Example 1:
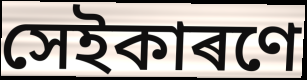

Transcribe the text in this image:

সেইকাৰণে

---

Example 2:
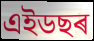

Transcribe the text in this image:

এইডছৰ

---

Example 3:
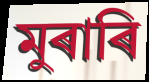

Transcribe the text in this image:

মুৰাৰি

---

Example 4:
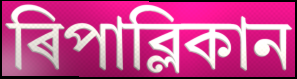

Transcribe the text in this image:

ৰিপাব্লিকান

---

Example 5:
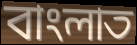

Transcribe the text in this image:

বাংলাত